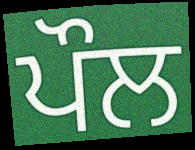
ਪੌਲ